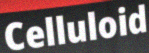
Celluloid